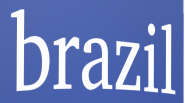
brazil